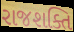
રાજશક્તિ